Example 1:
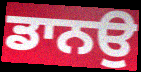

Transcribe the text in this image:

ਡਾਨਉ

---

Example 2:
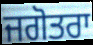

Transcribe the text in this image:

ਜਗੋਤਰਾ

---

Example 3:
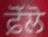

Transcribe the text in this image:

ਫ਼ੋੱਲੋ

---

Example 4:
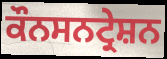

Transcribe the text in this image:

ਕੌਨਸਨਟ੍ਰੇਸ਼ਨ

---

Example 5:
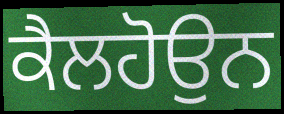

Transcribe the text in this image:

ਕੈਲਹੋਉਨ